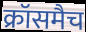
क्रॉसमैच